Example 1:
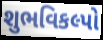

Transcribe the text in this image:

શુભવિકલ્પો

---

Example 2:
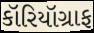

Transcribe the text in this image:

કૉરિયૉગ્રાફ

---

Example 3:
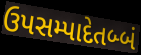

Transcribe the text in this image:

ઉપસમ્પાદેતબ્બં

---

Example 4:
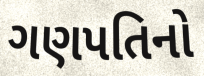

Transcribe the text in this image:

ગણપતિનો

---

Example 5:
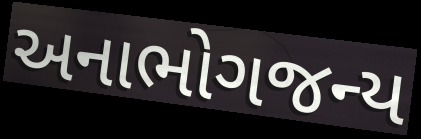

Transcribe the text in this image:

અનાભોગજન્ય